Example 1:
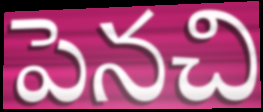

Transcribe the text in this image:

పెనచి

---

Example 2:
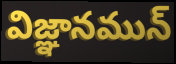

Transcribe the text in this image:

విజ్ఞానమున్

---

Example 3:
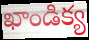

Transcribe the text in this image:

ఖాండిక్య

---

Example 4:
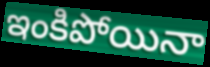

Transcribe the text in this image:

ఇంకిపోయినా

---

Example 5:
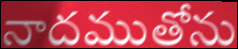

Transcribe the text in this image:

నాదముతోను